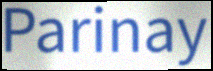
Parinay